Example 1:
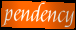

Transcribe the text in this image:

pendency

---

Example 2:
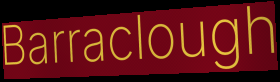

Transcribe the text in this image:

Barraclough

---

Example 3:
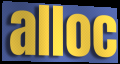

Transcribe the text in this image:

alloc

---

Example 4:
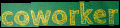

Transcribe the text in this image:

coworker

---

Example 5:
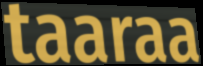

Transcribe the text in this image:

taaraa